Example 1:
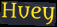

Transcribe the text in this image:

Huey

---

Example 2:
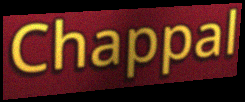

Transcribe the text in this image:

Chappal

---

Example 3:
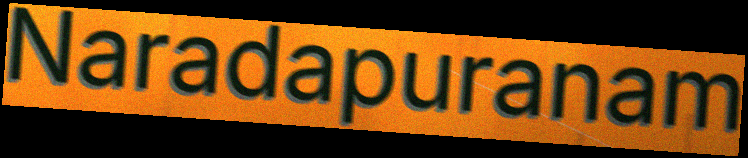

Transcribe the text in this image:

Naradapuranam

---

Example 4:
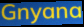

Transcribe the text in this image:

Gnyana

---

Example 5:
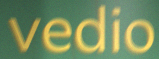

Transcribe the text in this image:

vedio